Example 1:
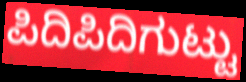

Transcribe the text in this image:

ಪಿದಿಪಿದಿಗುಟ್ಟು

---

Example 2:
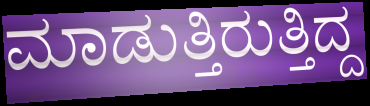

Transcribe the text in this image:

ಮಾಡುತ್ತಿರುತ್ತಿದ್ದ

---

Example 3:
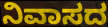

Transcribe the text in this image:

ನಿವಾಸದ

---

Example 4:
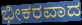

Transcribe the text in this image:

ಭೀಕರವಾದ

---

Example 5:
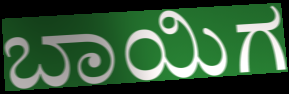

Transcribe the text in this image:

ಬಾಯಿಗ